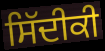
ਸਿੱਦੀਕੀ